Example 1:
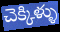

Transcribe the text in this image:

చెక్కిళ్ళు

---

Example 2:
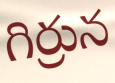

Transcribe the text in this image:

గిర్రున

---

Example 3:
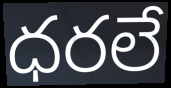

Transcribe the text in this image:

ధరలే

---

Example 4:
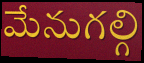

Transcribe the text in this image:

మేనుగల్గి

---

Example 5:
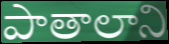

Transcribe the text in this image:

పాతాలాని